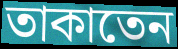
তাকাতেন